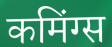
कमिंग्स